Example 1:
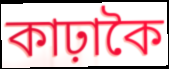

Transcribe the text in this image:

কাঢ়াকৈ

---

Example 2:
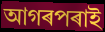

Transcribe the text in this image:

আগৰপৰাই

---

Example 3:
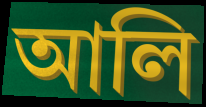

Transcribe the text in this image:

আলি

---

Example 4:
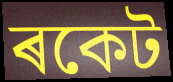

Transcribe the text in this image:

ৰকেট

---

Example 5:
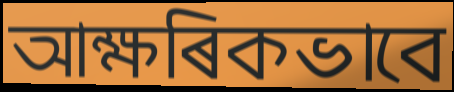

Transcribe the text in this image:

আক্ষৰিকভাবে